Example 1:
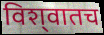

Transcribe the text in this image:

विश्वातच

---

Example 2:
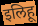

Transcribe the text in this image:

इलिहू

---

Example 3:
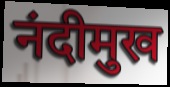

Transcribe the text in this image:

नंदीमुख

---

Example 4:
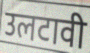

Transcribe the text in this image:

उलटावी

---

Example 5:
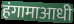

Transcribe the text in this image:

हंगामाआधी